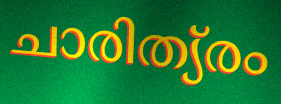
ചാരിത്യ്രം